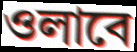
ওলাবে